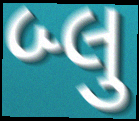
બ્લુ